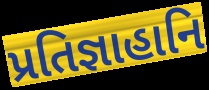
પ્રતિજ્ઞાહાનિ